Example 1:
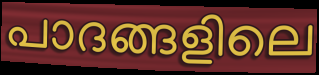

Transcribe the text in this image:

പാദങ്ങളിലെ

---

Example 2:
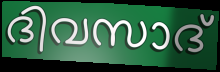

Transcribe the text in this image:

ദിവസാദ്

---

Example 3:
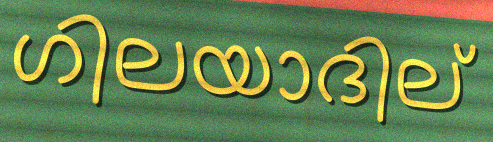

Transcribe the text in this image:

ഗിലയാദില്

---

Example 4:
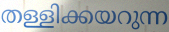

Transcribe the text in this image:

തള്ളിക്കയറുന്ന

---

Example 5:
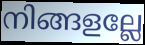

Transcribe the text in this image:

നിങ്ങളല്ലേ